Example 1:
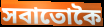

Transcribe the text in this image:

সবাতোকৈ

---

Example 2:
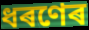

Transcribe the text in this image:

ধৰণেৰ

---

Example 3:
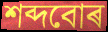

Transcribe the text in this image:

শব্দবোৰ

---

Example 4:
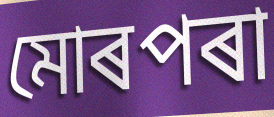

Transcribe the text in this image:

মোৰপৰা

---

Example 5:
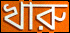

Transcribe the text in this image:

খাৰু